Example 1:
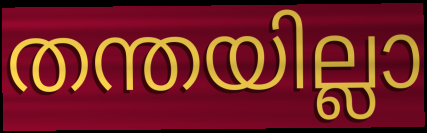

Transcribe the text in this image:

തന്തയില്ലാ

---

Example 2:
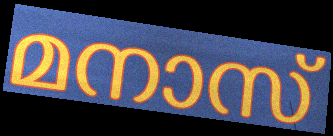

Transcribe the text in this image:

മനാസ്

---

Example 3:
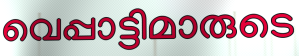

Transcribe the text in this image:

വെപ്പാട്ടിമാരുടെ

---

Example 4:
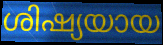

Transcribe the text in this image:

ശിഷ്യയായ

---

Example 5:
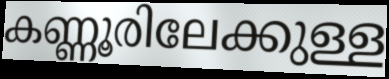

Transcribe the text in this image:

കണ്ണൂരിലേക്കുള്ള